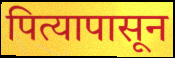
पित्यापासून